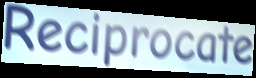
Reciprocate